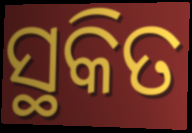
ସ୍ଥକିତ